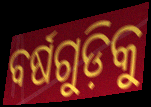
ବର୍ଷଗୁଡ଼ିକୁ